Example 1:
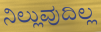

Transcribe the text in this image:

ನಿಲ್ಲುವುದಿಲ್ಲ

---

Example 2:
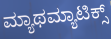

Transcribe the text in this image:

ಮ್ಯಾಥಮ್ಯಾಟಿಕ್ಸ್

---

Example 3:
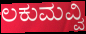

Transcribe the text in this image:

ಲಕುಮವ್ವಿ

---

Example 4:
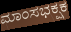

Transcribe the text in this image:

ಮಾಂಸಭಕ್ಷಕ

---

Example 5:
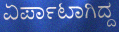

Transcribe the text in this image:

ಏರ್ಪಾಟಾಗಿದ್ದ